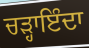
ਚੜ੍ਹਾਇੰਦਾ